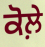
ਕੋਲ਼ੇ